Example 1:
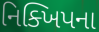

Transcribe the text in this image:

નિક્ખિપના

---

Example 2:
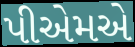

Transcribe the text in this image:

પીએમએ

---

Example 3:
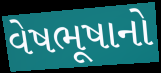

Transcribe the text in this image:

વેષભૂષાનો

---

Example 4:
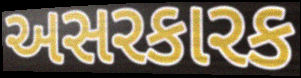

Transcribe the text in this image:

અસરકારક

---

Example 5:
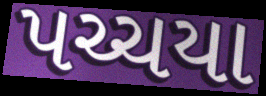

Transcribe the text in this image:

પચ્ચયા